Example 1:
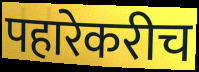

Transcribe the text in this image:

पहारेकरीच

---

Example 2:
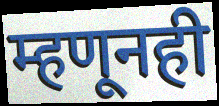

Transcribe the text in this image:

म्हणूनही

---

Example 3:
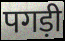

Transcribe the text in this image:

पगड़ी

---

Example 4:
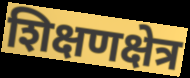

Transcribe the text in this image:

शिक्षणक्षेत्र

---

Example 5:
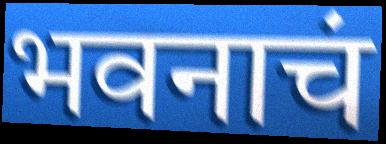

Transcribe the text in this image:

भवनाचं